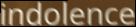
indolence